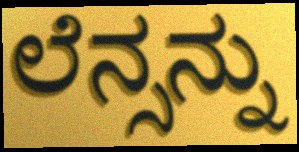
ಲೆನ್ಸನ್ನು